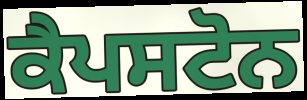
ਕੈਪਸਟੋਨ